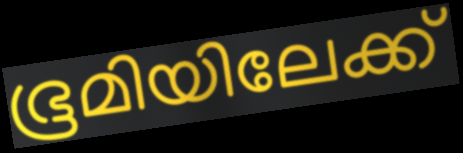
ഭൂമിയിലേക്ക്